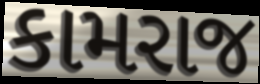
કામરાજ